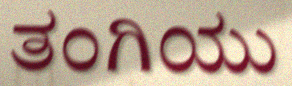
ತಂಗಿಯು